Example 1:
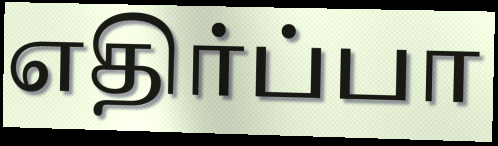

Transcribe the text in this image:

எதிர்ப்பா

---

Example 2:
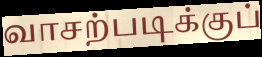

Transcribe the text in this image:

வாசற்படிக்குப்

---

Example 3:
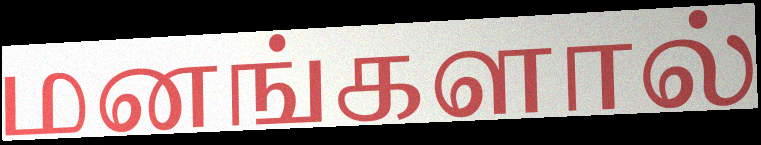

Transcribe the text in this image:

மனங்களால்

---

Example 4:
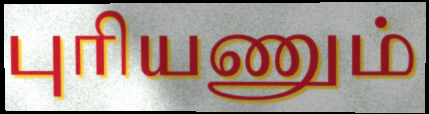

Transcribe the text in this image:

புரியணும்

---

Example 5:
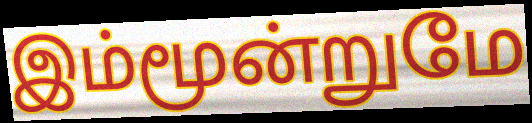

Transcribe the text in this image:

இம்மூன்றுமே